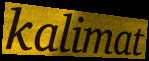
kalimat